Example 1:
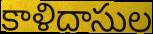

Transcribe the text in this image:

కాళిదాసుల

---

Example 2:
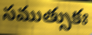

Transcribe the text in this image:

సముత్సుకః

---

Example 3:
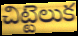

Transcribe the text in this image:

చిట్టెలుక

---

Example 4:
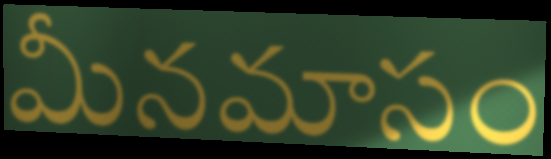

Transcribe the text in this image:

మీనమాసం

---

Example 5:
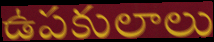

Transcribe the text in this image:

ఉపకులాలు